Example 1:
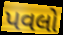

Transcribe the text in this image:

પવલો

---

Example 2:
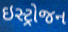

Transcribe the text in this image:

ઇસ્ટ્રોજન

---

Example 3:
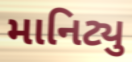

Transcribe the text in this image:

માનિટ્યુ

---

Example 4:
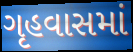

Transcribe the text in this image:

ગૃહવાસમાં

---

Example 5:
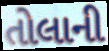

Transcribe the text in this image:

તોલાની